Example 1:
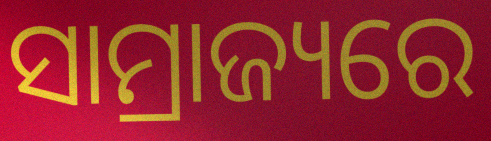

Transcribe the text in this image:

ସାମ୍ରାଜ୍ୟରେ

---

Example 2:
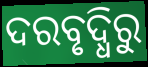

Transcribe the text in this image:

ଦରବୃଦ୍ଧିରୁ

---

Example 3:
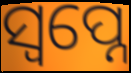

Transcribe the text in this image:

ସ୍ବପ୍ନେ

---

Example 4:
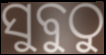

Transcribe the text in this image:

ସୁବୁଠୁ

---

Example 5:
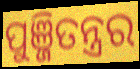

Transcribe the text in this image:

ପୁଞ୍ଜିତନ୍ତ୍ରର